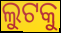
ଲୁଟକୁ